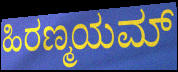
ಹಿರಣ್ಮಯಮ್